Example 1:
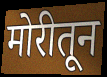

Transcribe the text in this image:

मोरीतून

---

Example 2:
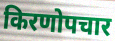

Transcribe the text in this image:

किरणोपचार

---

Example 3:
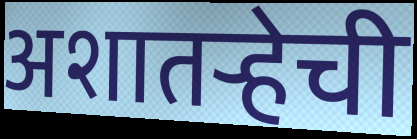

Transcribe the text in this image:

अशातऱ्हेची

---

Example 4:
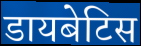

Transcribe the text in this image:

डायबेटिस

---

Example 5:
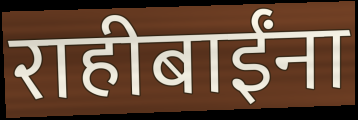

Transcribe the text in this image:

राहीबाईंना